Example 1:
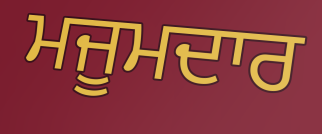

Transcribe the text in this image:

ਮਜੂਮਦਾਰ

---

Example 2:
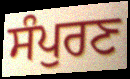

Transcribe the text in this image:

ਸੰਪੁਰਣ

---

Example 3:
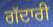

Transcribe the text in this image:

ਗੱਦਾਰੀ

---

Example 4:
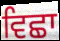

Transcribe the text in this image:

ਵਿਛਾ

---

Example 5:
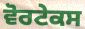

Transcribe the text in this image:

ਵੋਰਟੇਕਸ